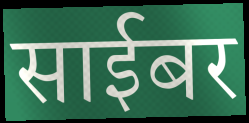
साईबर